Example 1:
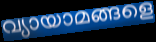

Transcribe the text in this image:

വ്യായാമങ്ങളെ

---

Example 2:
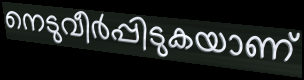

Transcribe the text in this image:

നെടുവീർപ്പിടുകയാണ്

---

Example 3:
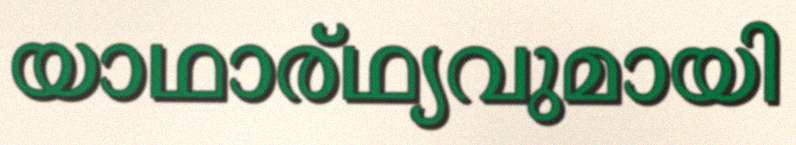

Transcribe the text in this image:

യാഥാര്ഥ്യവുമായി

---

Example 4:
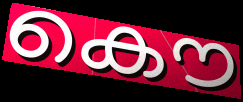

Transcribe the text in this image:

കൌ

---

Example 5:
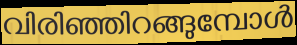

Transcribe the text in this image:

വിരിഞ്ഞിറങ്ങുമ്പോൾ